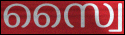
സ്വൈ